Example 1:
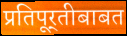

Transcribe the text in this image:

प्रतिपूर्तीबाबत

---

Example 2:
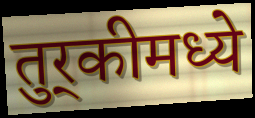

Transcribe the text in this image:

तुर्कीमध्ये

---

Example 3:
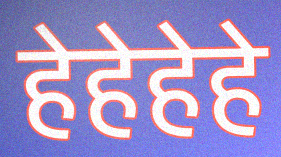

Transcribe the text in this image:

हेहेहेहे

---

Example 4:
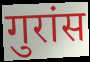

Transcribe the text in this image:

गुरांस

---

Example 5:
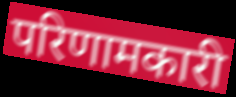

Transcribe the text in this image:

परिणामकारी